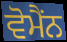
ਵੋਮੈਂਨ